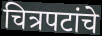
चित्रपटांचे